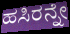
ಹಸಿರನ್ನೇ